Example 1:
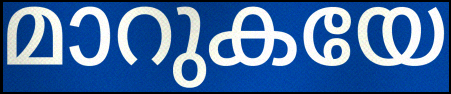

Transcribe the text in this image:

മാറുകയേ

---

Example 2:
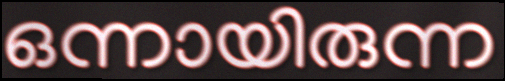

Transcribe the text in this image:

ഒന്നായിരുന്ന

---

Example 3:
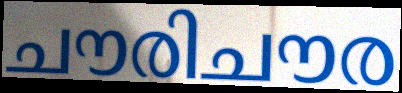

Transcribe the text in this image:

ചൗരിചൗര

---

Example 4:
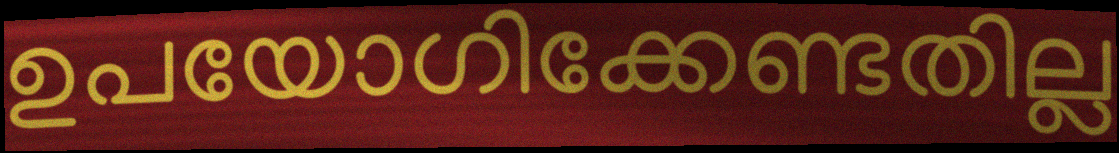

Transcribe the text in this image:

ഉപയോഗിക്കേണ്ടതില്ല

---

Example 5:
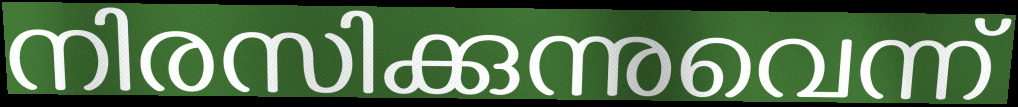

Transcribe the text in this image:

നിരസിക്കുന്നുവെന്ന്